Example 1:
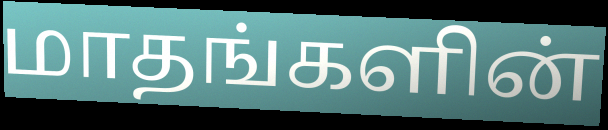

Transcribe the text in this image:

மாதங்களின்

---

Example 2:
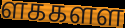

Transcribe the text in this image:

ளககளள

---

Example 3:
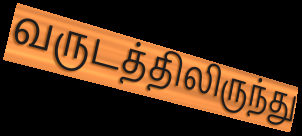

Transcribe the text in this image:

வருடத்திலிருந்து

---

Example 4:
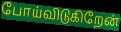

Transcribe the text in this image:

போய்விடுகிறேன்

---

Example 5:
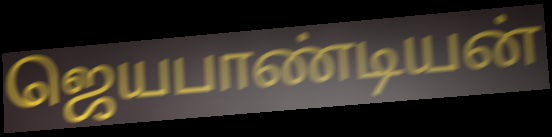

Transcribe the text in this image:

ஜெயபாண்டியன்